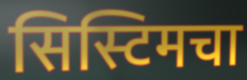
सिस्टिमचा